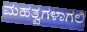
ಮಹತ್ವಗಳಾಗಲಿ